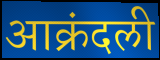
आक्रंदली